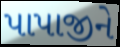
પાપાજીને